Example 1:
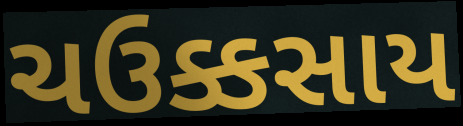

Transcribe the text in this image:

ચઉક્કસાય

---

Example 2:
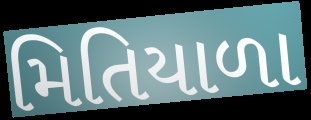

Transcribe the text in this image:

મિતિયાળા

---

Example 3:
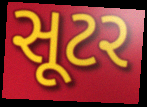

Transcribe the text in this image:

સૂટર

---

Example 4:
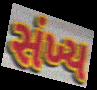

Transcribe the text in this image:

સંખ્ય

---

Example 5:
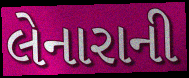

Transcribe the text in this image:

લેનારાની